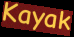
Kayak